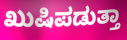
ಖುಷಿಪಡುತ್ತಾ